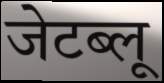
जेटब्लू